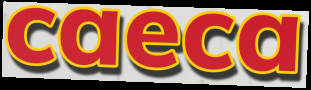
caeca